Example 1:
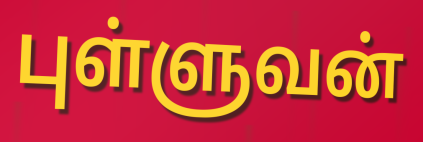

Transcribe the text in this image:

புள்ளுவன்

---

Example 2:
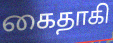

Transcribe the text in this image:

கைதாகி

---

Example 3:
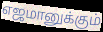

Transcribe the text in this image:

எஜமானுக்கும்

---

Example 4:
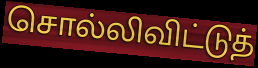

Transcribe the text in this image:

சொல்லிவிட்டுத்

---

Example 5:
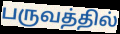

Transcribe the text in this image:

பருவத்தில்